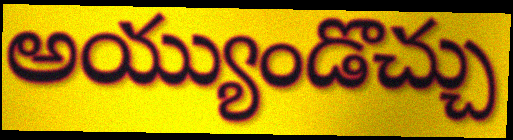
అయ్యుండొచ్చు